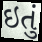
ઇતું